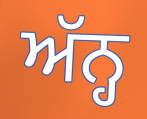
ਅੱਨ੍ਹ